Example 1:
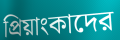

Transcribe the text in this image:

প্রিয়াংকাদের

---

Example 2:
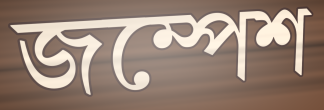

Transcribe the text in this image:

জম্পেশ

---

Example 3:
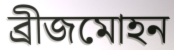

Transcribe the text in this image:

ব্রীজমোহন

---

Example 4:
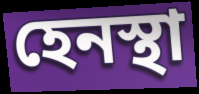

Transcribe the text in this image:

হেনস্থা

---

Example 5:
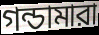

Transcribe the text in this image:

গন্ডামারা